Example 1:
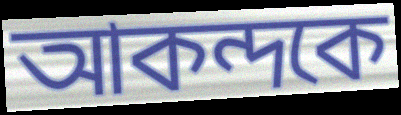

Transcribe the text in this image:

আকন্দকে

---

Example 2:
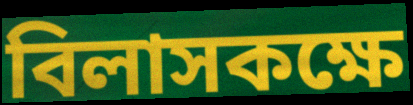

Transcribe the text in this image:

বিলাসকক্ষে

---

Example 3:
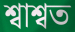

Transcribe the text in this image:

শ্বাশ্বত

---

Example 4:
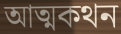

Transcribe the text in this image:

আত্মকথন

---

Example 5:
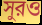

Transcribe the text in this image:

সুরও